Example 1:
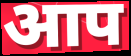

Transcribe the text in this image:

आप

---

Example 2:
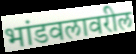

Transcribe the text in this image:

भांडवलावरील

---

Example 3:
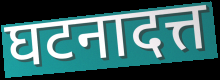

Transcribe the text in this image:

घटनादत्त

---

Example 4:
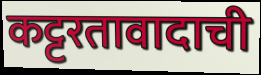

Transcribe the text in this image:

कट्टरतावादाची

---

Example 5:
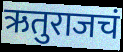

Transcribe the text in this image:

ऋतुराजचं